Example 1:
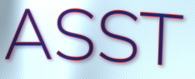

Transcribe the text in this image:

ASST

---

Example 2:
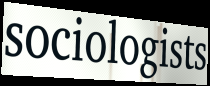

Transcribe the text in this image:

sociologists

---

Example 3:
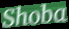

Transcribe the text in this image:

Shoba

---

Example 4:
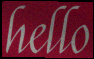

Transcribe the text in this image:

hello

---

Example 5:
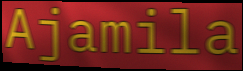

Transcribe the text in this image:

Ajamila